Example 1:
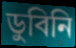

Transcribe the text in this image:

ডুবিনি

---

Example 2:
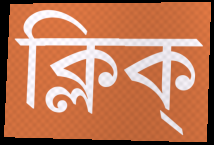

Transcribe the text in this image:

ক্লিক্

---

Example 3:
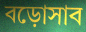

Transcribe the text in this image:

বড়োসাব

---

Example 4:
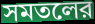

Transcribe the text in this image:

সমতলের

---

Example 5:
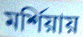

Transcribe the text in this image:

মর্শিয়ায়